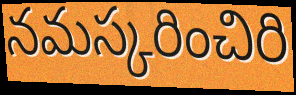
నమస్కరించిరి